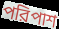
পরিপাশ